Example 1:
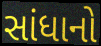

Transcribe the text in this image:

સાંધાનો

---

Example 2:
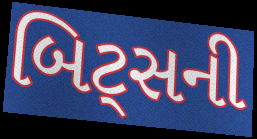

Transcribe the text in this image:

બિટ્સની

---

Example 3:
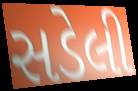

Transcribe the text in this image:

સડેલી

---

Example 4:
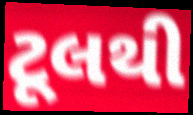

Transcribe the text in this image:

ટૂલથી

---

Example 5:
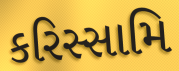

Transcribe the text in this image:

કરિસ્સામિ